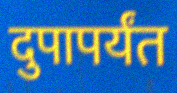
दुपापर्यंत